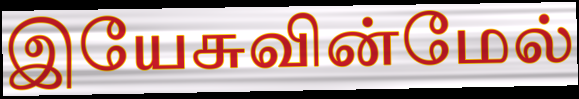
இயேசுவின்மேல்